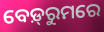
ବେଡ଼୍‌ରୁମରେ